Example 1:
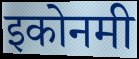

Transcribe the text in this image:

इकोनमी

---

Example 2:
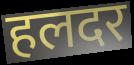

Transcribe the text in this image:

हलदर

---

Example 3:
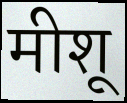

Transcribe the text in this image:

मीशू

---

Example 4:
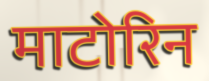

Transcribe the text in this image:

माटोरिन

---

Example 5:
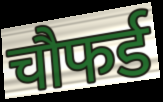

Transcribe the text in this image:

चौफर्ड